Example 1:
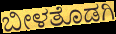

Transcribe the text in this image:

ಬೀಳತೊಡಗಿ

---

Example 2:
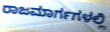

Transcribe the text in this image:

ರಾಜಮಾರ್ಗಗಳಲ್ಲಿ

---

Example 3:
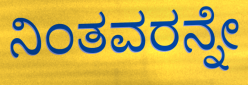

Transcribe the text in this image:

ನಿಂತವರನ್ನೇ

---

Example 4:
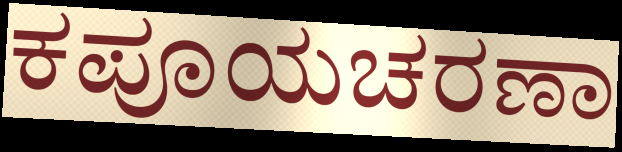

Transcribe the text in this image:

ಕಪೂಯಚರಣಾ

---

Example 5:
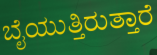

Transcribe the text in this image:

ಬೈಯುತ್ತಿರುತ್ತಾರೆ